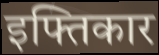
इफ्तिकार